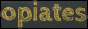
opiates